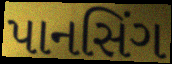
પાનસિંગ